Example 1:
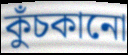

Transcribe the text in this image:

কুঁচকানো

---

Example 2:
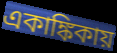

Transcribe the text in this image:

একাঙ্কিকায়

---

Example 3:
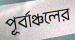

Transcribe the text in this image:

পূর্বাঞ্চলের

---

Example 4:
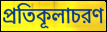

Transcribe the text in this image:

প্রতিকূলাচরণ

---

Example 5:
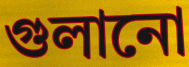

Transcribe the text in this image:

গুলানো